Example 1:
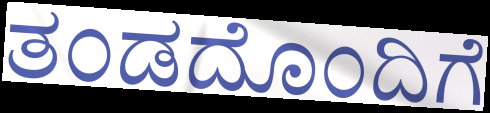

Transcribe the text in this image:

ತಂಡದೊಂದಿಗೆ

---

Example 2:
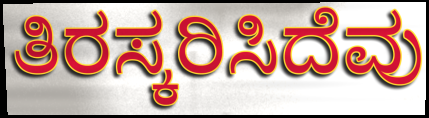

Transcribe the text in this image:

ತಿರಸ್ಕರಿಸಿದೆವು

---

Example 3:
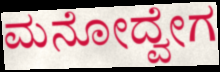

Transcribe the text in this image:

ಮನೋದ್ವೇಗ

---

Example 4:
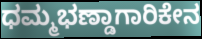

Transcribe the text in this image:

ಧಮ್ಮಭಣ್ಡಾಗಾರಿಕೇನ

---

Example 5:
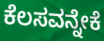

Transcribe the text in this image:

ಕೆಲಸವನ್ನೇಕೆ